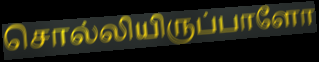
சொல்லியிருப்பாளோ